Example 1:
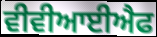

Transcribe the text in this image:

ਵੀਵੀਆਈਐਫ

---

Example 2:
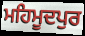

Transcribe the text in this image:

ਮਹਿਮੂਦਪੁਰ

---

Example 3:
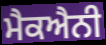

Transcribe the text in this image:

ਮੈਕਐਨੀ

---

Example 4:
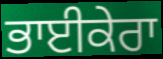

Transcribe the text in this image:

ਭਾਈਕੇਰਾ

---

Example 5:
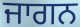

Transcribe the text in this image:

ਜਾਗਨ